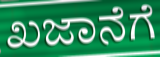
ಖಜಾನೆಗೆ